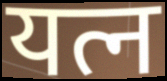
यत्न